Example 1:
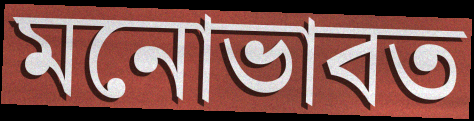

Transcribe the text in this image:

মনোভাবত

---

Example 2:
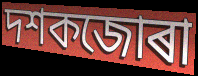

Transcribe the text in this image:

দশকজোৰা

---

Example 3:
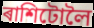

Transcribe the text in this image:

ৰাশিটোলৈ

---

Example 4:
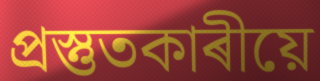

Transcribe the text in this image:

প্ৰস্তুতকাৰীয়ে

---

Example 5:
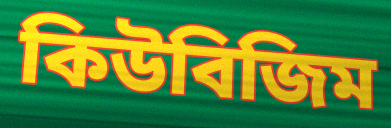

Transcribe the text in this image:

কিউবিজিম